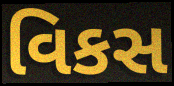
વિકસ